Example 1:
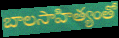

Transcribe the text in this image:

బాలసాహిత్యంతో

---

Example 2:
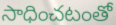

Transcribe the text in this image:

సాధించటంతో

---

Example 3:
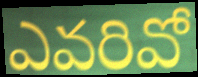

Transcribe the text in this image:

ఎవరివో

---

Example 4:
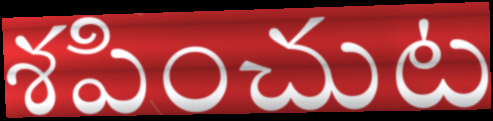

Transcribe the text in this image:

శపించుట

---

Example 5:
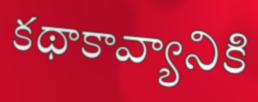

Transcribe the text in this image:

కథాకావ్యానికి